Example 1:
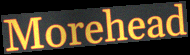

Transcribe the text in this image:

Morehead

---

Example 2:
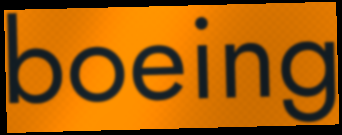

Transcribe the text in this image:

boeing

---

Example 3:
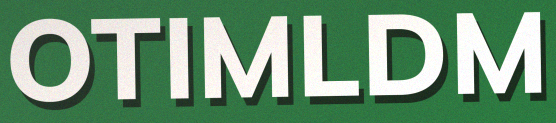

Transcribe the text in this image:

OTIMLDM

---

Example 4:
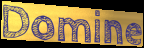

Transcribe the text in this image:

Domine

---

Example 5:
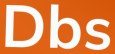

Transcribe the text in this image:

Dbs